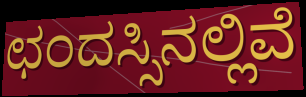
ಛಂದಸ್ಸಿನಲ್ಲಿವೆ